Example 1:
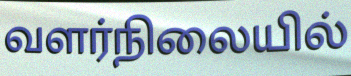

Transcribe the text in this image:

வளர்நிலையில்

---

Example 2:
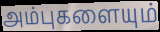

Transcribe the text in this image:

அம்புகளையும்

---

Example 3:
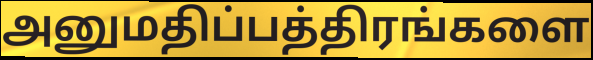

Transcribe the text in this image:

அனுமதிப்பத்திரங்களை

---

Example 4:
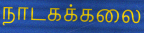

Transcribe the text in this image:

நாடகக்கலை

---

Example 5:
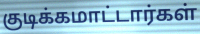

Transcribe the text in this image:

குடிக்கமாட்டார்கள்